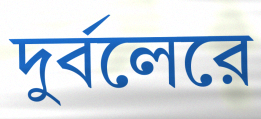
দুর্বলেরে